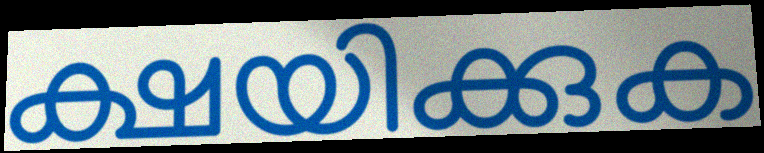
ക്ഷയിക്കുക